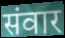
संवार